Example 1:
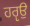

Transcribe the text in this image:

ਹਰੵਉ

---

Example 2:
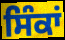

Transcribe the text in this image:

ਸਿੰਕਾਂ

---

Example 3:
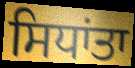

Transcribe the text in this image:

ਸਿਧਾਂਤਾ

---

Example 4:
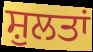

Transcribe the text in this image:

ਸ਼ੁਲਤਾਂ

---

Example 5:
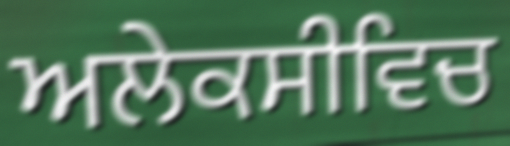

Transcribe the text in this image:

ਅਲੇਕਸੀਵਿਚ